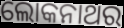
ଲୋକନାଥର